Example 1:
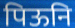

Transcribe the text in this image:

पिऊनि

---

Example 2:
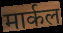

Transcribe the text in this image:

मार्कल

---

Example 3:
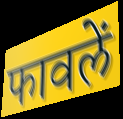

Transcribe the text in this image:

फावलें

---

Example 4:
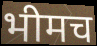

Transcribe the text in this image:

भीमच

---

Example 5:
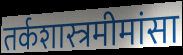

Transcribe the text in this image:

तर्कशास्त्रमीमांसा